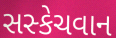
સસ્કેચવાન